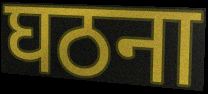
घठना